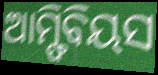
ଆମ୍ଫିବିୟସ